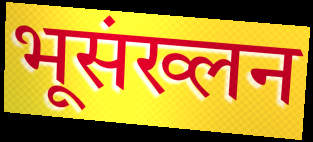
भूसंख्लन